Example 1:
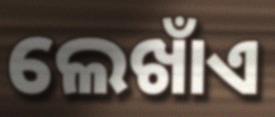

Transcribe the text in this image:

ଲେଖାଁଏ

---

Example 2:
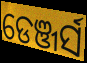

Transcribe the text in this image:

ଡେଞ୍ଜର୍ସ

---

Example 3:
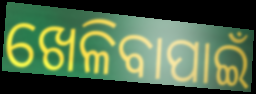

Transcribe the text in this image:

ଖେଳିବାପାଇଁ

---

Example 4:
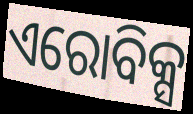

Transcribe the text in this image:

ଏରୋବିକ୍ସ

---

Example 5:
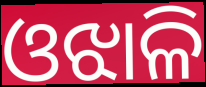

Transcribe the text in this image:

ଓଝାଳି